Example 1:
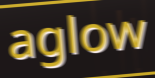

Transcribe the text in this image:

aglow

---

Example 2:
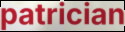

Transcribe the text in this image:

patrician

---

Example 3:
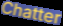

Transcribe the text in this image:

Chatter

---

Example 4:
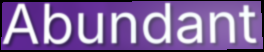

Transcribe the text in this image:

Abundant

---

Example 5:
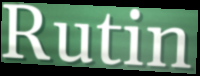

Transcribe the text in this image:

Rutin